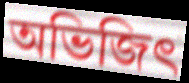
অভিজিৎ